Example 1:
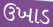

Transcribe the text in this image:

ઉખાડ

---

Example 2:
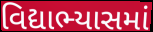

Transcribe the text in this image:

વિદ્યાભ્યાસમાં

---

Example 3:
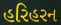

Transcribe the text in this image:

હરિહરન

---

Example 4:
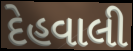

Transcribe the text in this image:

દેહવાલી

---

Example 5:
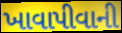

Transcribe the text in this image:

ખાવાપીવાની